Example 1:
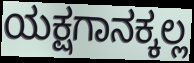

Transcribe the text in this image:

ಯಕ್ಷಗಾನಕ್ಕಲ್ಲ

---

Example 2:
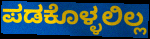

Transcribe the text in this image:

ಪಡಕೊಳ್ಳಲಿಲ್ಲ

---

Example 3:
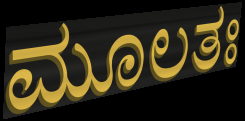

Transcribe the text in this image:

ಮೂಲತಃ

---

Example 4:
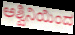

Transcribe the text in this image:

ಅಶ್ವಿನಿಯಿಂದ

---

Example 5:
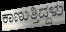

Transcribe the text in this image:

ಕಾಣುತ್ತಿದ್ದಳು